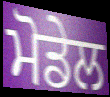
ਮੋਡੇਲ